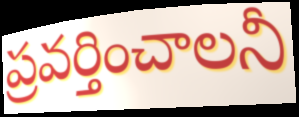
ప్రవర్తించాలనీ